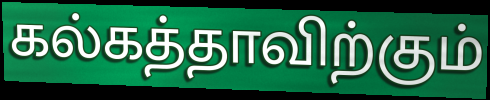
கல்கத்தாவிற்கும்